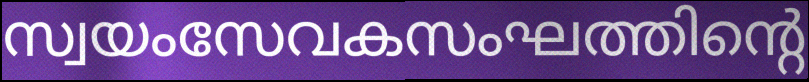
സ്വയംസേവകസംഘത്തിന്റെ